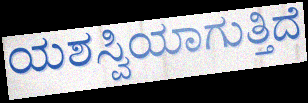
ಯಶಸ್ವಿಯಾಗುತ್ತಿದೆ